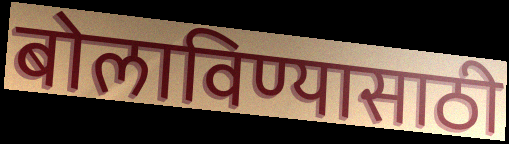
बोलाविण्यासाठी